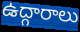
ఉద్గారాలు